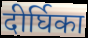
दीर्घिका